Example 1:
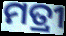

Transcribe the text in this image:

ମତ୍ରୀ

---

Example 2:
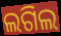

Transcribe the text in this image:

ଲଗିଲ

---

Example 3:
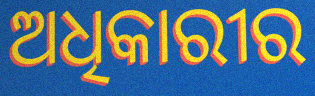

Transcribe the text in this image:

ଅଧିକାରୀର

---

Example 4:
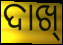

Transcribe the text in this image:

ଦାଖ୍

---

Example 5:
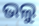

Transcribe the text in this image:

ଭଲୁ